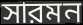
সারমন